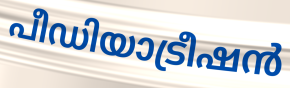
പീഡിയാട്രീഷൻ